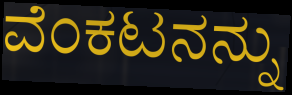
ವೆಂಕಟನನ್ನು